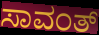
ಸಾವಂತ್